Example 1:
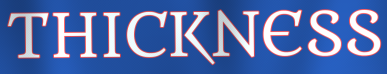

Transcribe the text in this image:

THICKNESS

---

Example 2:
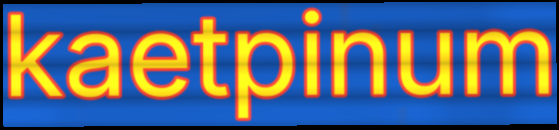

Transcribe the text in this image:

kaetpinum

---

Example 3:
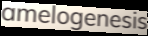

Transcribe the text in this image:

amelogenesis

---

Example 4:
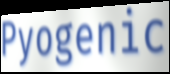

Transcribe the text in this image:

Pyogenic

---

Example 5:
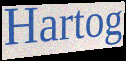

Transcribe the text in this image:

Hartog